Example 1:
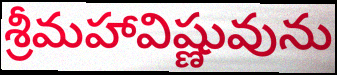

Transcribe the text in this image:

శ్రీమహావిష్ణువును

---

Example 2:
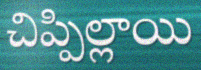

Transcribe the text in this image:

చిప్పిల్లాయి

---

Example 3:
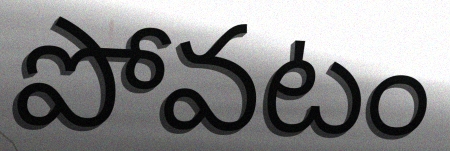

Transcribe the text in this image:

పోవటం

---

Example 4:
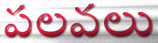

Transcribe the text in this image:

పలవలు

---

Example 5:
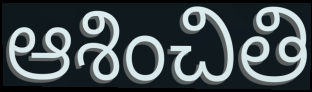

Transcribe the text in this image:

ఆశించితి